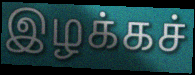
இழக்கச்